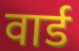
वार्ड